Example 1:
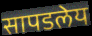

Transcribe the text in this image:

सापडलेय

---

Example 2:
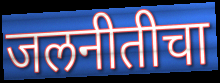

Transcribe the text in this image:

जलनीतीचा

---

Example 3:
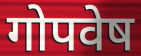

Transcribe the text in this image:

गोपवेष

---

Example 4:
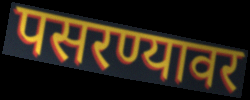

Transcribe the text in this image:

पसरण्यावर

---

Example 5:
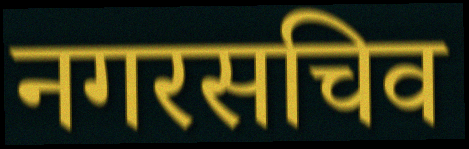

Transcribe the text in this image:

नगरसचिव